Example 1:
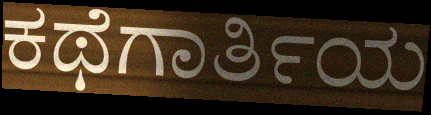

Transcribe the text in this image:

ಕಥೆಗಾರ್ತಿಯ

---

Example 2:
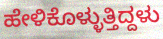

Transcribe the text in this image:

ಹೇಳಿಕೊಳ್ಳುತ್ತಿದ್ದಳು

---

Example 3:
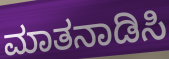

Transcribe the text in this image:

ಮಾತನಾಡಿಸಿ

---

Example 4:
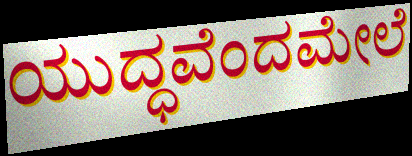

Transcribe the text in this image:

ಯುದ್ಧವೆಂದಮೇಲೆ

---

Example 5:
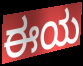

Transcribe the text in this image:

ಈಯ